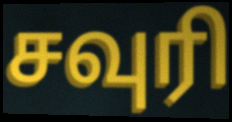
சவுரி